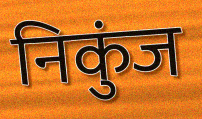
निकुंज